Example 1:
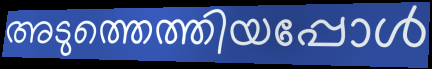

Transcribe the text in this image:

അടുത്തെത്തിയപ്പോൾ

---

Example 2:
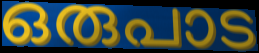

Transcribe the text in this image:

ഒരുപാട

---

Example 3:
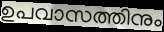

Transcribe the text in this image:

ഉപവാസത്തിനും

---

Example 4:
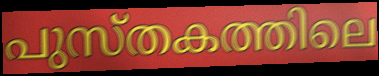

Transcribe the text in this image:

പുസ്തകത്തിലെ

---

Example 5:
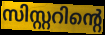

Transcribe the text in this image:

സിസ്റ്ററിന്റെ